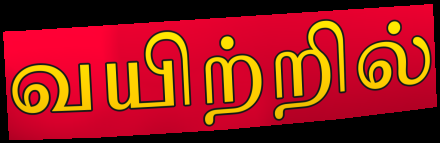
வயிற்றில்